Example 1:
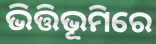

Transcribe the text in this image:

ଭିତ୍ତିଭୂମିରେ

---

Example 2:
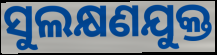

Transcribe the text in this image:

ସୁଲକ୍ଷଣଯୁକ୍ତ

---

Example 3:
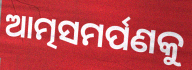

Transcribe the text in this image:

ଆତ୍ମସମର୍ପଣକୁ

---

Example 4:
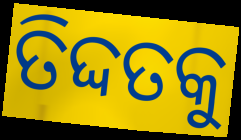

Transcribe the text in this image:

ତିଦ୍ଦତକୁ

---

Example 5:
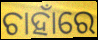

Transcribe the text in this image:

ଚାହାଁରେ